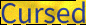
Cursed